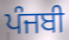
ਪੰਜਬੀ